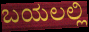
ಬಯಲಲ್ಲಿ